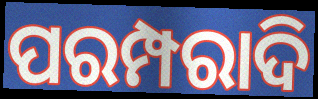
ପରମ୍ପରାଦି